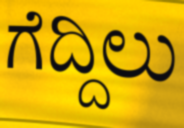
ಗೆದ್ದಿಲು